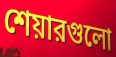
শেয়ারগুলো